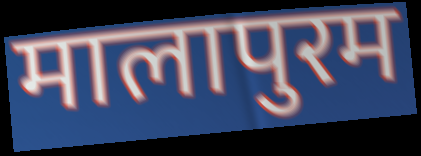
मालापुरम